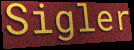
Sigler